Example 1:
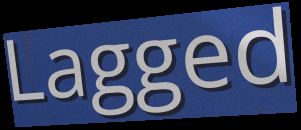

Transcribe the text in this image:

Lagged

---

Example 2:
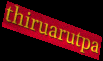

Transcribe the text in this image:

thiruarutpa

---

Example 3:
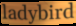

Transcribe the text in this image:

ladybird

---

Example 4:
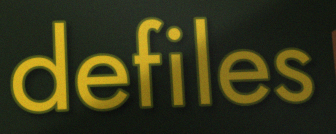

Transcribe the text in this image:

defiles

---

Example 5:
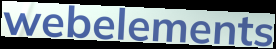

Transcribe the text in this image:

webelements